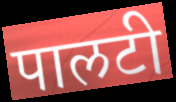
पालटी